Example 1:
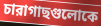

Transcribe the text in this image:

চারাগাছগুলোকে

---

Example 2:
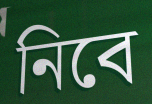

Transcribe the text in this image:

নিবে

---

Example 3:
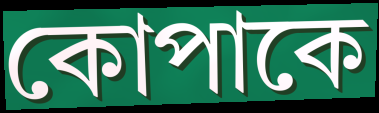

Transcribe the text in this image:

কোপাকে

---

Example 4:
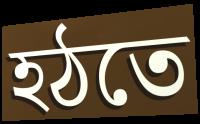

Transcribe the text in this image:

হঠতে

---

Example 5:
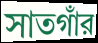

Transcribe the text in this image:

সাতগাঁর